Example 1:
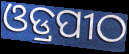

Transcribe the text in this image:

ଓଡ୍ରପୀଠ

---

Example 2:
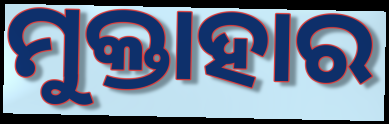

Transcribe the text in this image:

ମୁକ୍ତାହାର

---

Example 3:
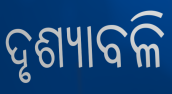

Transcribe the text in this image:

ଦୃଶ୍ୟାବଳି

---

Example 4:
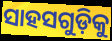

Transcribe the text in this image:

ସାହସଗୁଡ଼ିକୁ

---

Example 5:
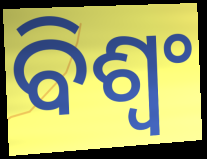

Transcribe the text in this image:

ବିଶ୍ୱଂ